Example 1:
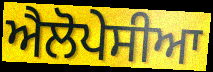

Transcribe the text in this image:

ਐਲੋਪੇਸੀਆ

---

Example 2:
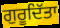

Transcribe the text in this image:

ਗੁਰੂਦਿੱਤਾ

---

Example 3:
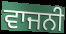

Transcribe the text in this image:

ਵਾਜਨੀ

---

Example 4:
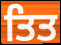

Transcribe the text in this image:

ਤਿਤ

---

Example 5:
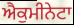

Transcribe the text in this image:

ਐਕੁਮੀਨੇਟਾ